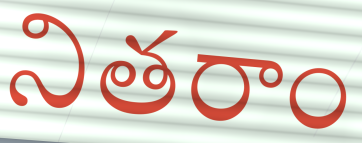
నితరాం